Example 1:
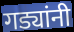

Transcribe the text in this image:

गड्यांनी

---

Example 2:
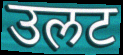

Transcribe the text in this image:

उलट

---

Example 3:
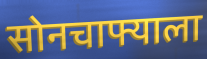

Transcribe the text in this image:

सोनचाफ्याला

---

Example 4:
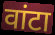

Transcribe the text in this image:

वांटा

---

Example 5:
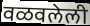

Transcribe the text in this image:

वळवलेली